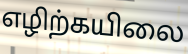
எழிற்கயிலை